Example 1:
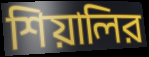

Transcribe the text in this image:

শিয়ালির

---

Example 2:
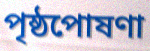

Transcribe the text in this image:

পৃষ্ঠপোষণা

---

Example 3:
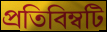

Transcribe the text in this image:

প্রতিবিম্বটি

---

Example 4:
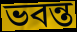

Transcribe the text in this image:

ভবন্ত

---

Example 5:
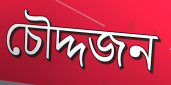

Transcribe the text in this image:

চৌদ্দজন